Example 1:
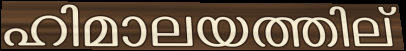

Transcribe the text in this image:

ഹിമാലയത്തില്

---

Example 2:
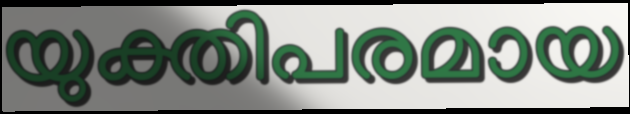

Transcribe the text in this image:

യുക്തിപരമായ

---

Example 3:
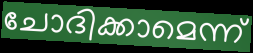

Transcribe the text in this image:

ചോദിക്കാമെന്ന്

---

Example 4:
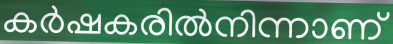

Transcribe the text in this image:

കർഷകരിൽനിന്നാണ്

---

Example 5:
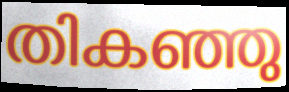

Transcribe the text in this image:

തികഞ്ഞു